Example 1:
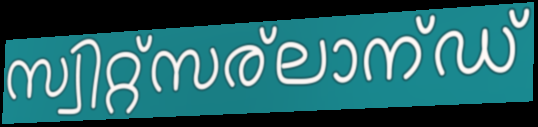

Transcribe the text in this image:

സ്വിറ്റ്സര്ലാന്ഡ്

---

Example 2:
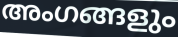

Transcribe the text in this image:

അംഗങ്ങളും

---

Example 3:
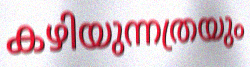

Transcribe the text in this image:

കഴിയുന്നത്രയും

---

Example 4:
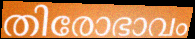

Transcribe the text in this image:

തിരോഭാവം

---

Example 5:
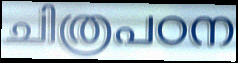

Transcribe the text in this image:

ചിത്രപഠന